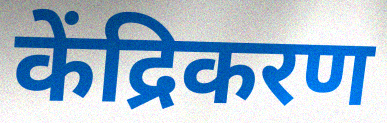
केंद्रिकरण